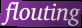
flouting